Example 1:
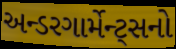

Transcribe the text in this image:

અન્ડરગાર્મેન્ટ્સનો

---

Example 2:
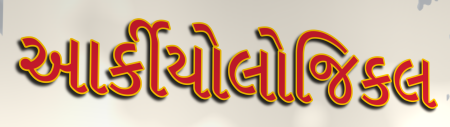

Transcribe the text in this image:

આર્કીયોલોજિકલ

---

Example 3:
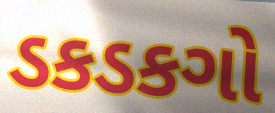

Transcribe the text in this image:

ડકડકગો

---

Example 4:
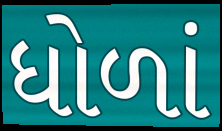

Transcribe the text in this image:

ધોળાં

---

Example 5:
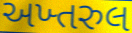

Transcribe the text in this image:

અખ્તરુલ